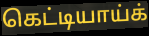
கெட்டியாய்க்